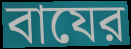
বাযের